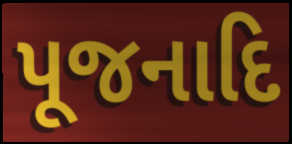
પૂજનાદિ